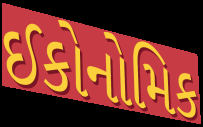
ઈકોનોમિક